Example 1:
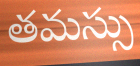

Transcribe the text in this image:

తమస్సు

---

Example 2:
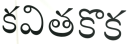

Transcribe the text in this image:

కవితకొక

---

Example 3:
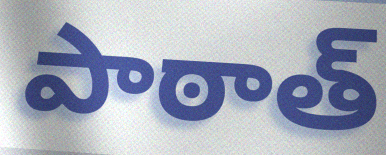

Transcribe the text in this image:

పాఠాత్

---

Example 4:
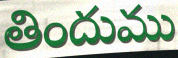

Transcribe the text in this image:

తిందుము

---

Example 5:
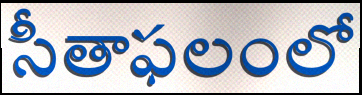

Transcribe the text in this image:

సీతాఫలంలో